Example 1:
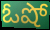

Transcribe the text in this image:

ఓషో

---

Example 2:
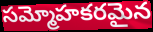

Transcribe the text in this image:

సమ్మోహకరమైన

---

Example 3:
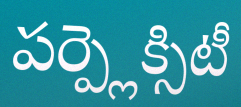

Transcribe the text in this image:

పర్ప్లెక్సిటీ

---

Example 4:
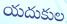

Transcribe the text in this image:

యదుకుల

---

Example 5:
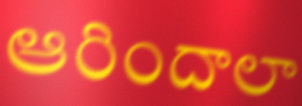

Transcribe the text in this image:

ఆరిందాలా